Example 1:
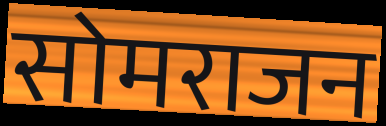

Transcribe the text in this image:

सोमराजन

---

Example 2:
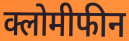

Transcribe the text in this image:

क्लोमीफीन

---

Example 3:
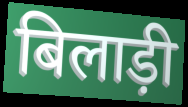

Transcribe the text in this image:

बिलाड़ी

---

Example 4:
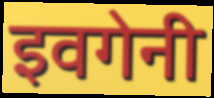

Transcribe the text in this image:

इवगेनी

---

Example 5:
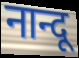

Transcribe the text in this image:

नान्दू